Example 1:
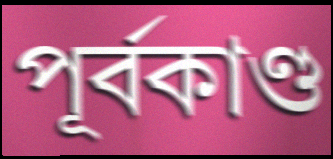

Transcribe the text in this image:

পূর্বকাণ্ড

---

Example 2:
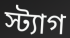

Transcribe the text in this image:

স্ট্যাগ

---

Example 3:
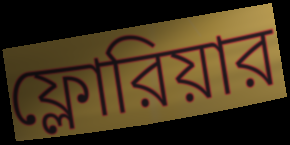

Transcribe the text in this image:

ফ্লোরিয়ার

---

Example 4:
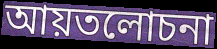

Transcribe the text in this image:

আয়তলোচনা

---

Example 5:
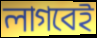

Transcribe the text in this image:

লাগবেই